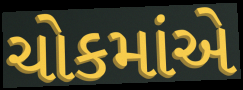
ચોકમાંએ